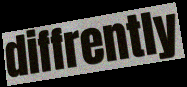
diffrently